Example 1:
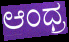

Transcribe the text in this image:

ಆಂಧ್ರ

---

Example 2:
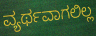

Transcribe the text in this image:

ವ್ಯರ್ಥವಾಗಲಿಲ್ಲ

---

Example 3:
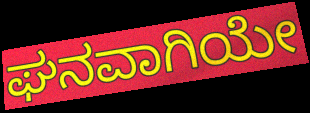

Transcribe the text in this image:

ಘನವಾಗಿಯೇ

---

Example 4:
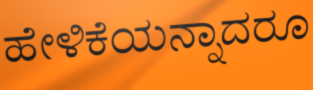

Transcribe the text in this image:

ಹೇಳಿಕೆಯನ್ನಾದರೂ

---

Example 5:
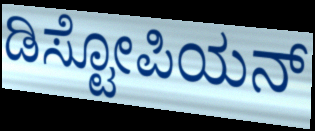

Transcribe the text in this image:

ಡಿಸ್ಟೋಪಿಯನ್